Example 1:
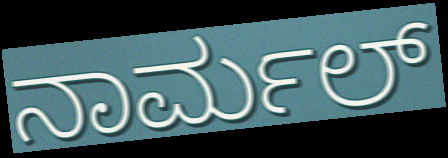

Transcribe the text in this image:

ನಾರ್ಮಲ್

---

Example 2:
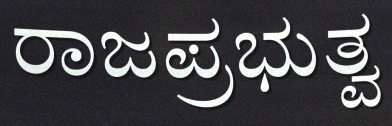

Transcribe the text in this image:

ರಾಜಪ್ರಭುತ್ವ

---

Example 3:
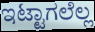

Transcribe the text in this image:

ಇಟ್ಟಾಗಲೆಲ್ಲ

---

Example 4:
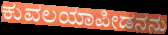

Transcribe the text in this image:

ಕುವಲಯಾಪೀಡನನು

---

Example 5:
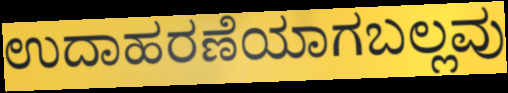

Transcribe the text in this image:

ಉದಾಹರಣೆಯಾಗಬಲ್ಲವು